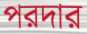
পরদার